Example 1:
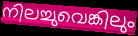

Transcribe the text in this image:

നിലച്ചുവെങ്കിലും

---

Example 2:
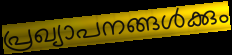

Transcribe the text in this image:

പ്രഖ്യാപനങ്ങൾക്കും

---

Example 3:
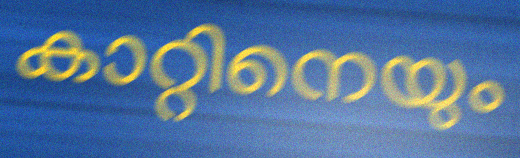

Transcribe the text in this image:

കാറ്റിനെയും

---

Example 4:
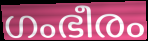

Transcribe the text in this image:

ഗംഭീരം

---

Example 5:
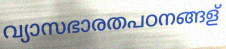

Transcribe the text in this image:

വ്യാസഭാരതപഠനങ്ങള്